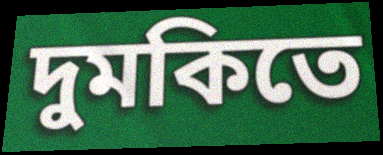
দুমকিতে